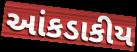
આંકડાકીય